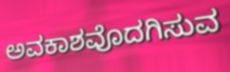
ಅವಕಾಶವೊದಗಿಸುವ